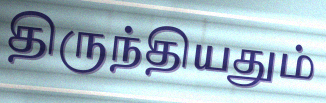
திருந்தியதும்